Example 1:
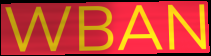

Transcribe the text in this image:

WBAN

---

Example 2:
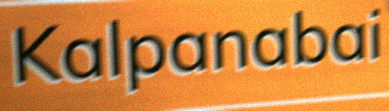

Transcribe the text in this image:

Kalpanabai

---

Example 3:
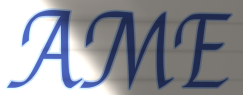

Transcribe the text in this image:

AME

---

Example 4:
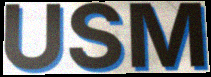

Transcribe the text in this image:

USM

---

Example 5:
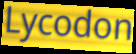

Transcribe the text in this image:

Lycodon